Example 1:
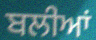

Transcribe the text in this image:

ਬਲੀਆਂ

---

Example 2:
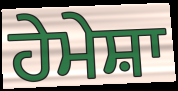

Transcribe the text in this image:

ਹੇਮੇਸ਼ਾ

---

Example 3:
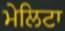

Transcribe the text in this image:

ਮੇਲਿਟਾ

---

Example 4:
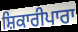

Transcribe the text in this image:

ਸ਼ਿਕਾਰੀਪਾਰਾ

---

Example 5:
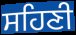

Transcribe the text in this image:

ਸਹਿਣੀ